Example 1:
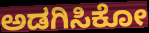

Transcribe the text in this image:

ಅಡಗಿಸಿಕೋ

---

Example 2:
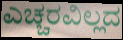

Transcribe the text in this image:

ಎಚ್ಚರವಿಲ್ಲದ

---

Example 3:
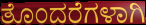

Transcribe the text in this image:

ತೊಂದರೆಗಳಾಗಿ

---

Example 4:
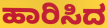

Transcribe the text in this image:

ಹಾರಿಸಿದ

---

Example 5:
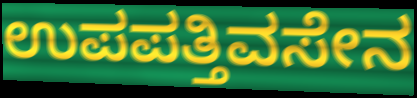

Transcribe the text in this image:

ಉಪಪತ್ತಿವಸೇನ